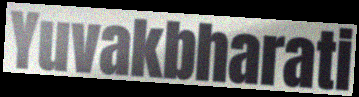
Yuvakbharati